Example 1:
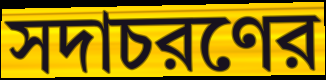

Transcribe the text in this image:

সদাচরণের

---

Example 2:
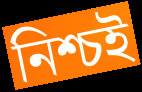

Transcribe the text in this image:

নিশ্চই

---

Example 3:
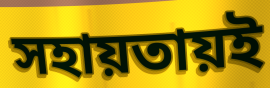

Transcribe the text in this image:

সহায়তায়ই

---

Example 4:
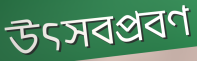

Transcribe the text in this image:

উৎসবপ্রবণ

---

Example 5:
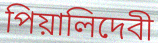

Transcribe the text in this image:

পিয়ালিদেবী